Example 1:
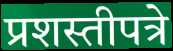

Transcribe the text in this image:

प्रशस्तीपत्रे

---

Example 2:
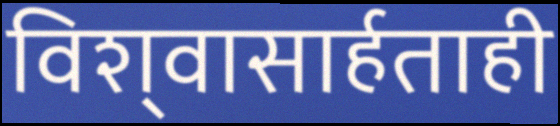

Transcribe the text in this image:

विश्वासार्हताही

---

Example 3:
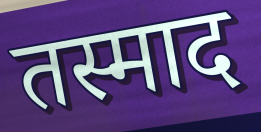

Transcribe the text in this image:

तस्माद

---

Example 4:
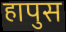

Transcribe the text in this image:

हापुस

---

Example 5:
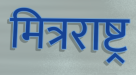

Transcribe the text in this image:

मित्रराष्ट्र